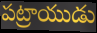
పట్రాయుడు